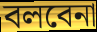
বলবেনা